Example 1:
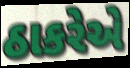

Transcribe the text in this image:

ઠાકરેએ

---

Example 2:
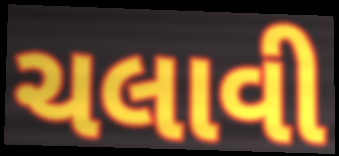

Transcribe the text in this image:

ચલાવી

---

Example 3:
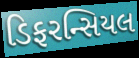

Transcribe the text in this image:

ડિફરન્સિયલ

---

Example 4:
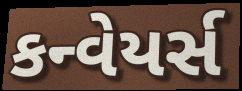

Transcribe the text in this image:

કન્વેયર્સ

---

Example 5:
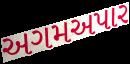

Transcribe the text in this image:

અગમઅપાર